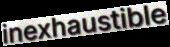
inexhaustible